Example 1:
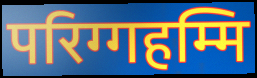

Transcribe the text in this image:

परिग्गहम्मि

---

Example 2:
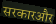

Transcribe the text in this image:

सरकारऔर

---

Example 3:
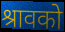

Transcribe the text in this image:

श्रावको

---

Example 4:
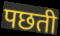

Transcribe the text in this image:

पछती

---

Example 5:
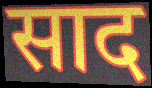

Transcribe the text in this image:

साद